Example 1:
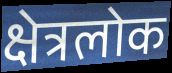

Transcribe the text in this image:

क्षेत्रलोक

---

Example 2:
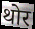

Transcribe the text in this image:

थोर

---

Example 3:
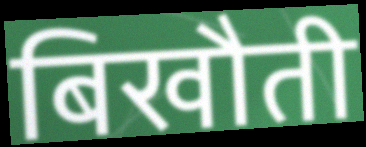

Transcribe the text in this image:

बिखौती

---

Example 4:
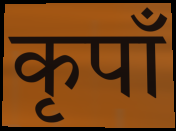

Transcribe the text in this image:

कृपाँ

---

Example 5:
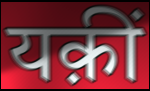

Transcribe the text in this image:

यक़ीं